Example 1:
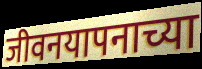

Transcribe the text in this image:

जीवनयापनाच्या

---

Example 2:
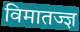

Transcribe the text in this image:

विमातज्ज्ञ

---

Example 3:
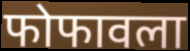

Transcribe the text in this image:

फोफावला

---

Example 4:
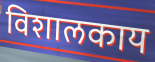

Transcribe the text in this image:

विशालकाय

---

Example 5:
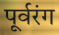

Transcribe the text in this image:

पूर्वरंग